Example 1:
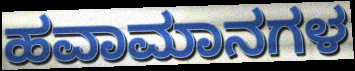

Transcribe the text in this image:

ಹವಾಮಾನಗಳ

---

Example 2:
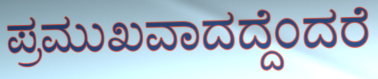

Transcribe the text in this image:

ಪ್ರಮುಖವಾದದ್ದೆಂದರೆ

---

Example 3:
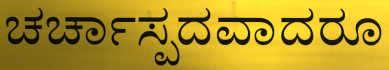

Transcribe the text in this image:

ಚರ್ಚಾಸ್ಪದವಾದರೂ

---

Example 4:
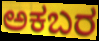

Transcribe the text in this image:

ಅಕಬರ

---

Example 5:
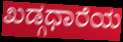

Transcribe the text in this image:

ಖಡ್ಗಧಾರೆಯ